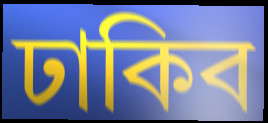
ঢাকিব